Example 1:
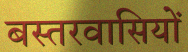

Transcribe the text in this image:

बस्तरवासियों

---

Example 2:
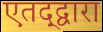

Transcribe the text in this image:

एतद्द्वारा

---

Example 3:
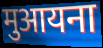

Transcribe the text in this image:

मुआयना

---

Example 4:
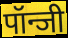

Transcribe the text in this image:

पॉन्जी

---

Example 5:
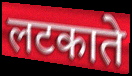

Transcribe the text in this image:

लटकाते